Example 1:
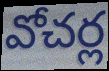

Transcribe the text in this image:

వోచర్ల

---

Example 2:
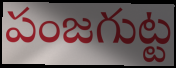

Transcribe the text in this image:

పంజగుట్ట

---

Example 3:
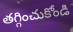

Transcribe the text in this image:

తగ్గించుకోండి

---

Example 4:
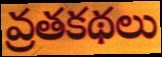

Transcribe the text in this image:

వ్రతకథలు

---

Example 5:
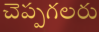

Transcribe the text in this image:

చెప్పగలరు